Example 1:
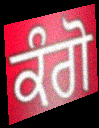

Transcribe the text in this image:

ਕੰਗੋ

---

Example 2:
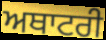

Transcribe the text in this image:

ਅਥਾਟਰੀ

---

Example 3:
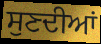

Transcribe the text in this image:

ਸੁਣਦੀਆਂ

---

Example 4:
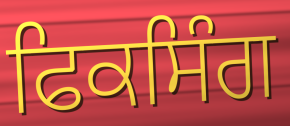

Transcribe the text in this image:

ਫਿਕਸਿੰਗ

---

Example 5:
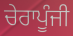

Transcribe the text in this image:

ਚੇਰਾਪੂੰਜੀ